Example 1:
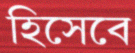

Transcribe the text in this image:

হিসেবে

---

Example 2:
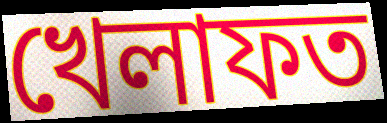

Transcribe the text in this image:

খেলাফত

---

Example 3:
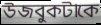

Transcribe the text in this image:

উজবুকটাকে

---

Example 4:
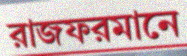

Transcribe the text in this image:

রাজফরমানে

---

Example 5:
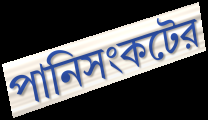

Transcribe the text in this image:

পানিসংকটের